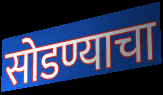
सोडण्याचा